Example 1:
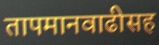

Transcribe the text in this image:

तापमानवाढीसह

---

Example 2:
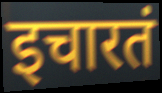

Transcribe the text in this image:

इचारतं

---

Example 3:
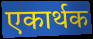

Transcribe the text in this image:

एकार्थक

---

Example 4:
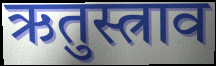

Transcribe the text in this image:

ऋतुस्त्राव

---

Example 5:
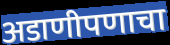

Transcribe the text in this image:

अडाणीपणाचा